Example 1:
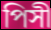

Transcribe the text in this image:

পিসী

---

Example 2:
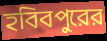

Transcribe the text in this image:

হবিবপুরের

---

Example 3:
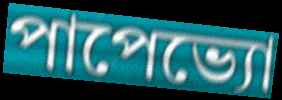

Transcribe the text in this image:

পাপেভ্যো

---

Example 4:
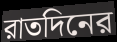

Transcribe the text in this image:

রাতদিনের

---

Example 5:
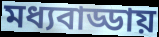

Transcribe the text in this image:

মধ্যবাড্ডায়